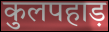
कुलपहाड़